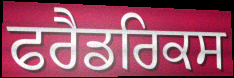
ਫਰੈਡਰਿਕਸ